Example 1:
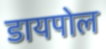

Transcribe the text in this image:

डायपोल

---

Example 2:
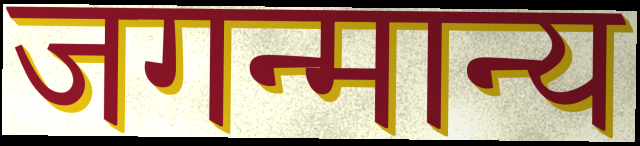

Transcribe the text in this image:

जगन्मान्य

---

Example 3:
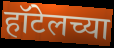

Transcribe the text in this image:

हॉटेलच्या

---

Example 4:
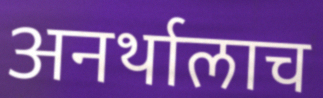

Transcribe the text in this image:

अनर्थालाच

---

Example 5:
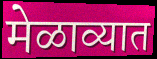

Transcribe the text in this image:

मेळाव्यात